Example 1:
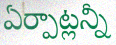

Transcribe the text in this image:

ఏర్పాట్లన్నీ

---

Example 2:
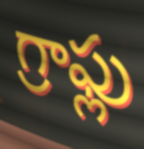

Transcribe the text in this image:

గ్రాఫ్లు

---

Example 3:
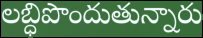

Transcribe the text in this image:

లబ్ధిపొందుతున్నారు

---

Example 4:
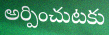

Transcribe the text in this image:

అర్పించుటకు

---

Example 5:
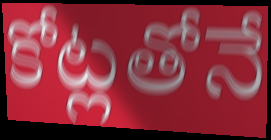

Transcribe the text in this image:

కోట్లతోనే